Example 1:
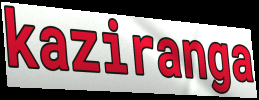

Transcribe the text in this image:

kaziranga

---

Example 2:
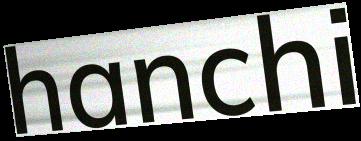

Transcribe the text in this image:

hanchi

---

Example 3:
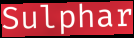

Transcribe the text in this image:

Sulphar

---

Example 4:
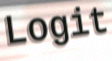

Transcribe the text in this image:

Logit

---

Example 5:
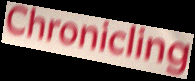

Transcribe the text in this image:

Chronicling